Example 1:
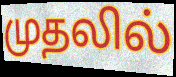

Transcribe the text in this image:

முதலில்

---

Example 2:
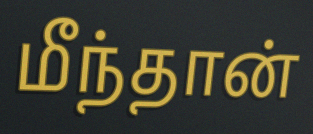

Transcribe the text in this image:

மீந்தான்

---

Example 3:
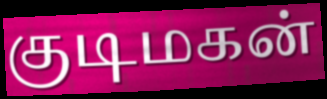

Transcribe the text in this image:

குடிமகன்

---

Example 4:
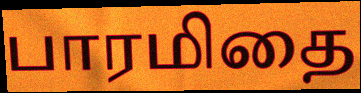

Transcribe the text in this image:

பாரமிதை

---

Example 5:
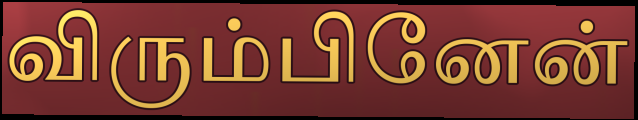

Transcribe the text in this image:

விரும்பினேன்